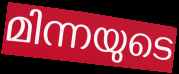
മിന്നയുടെ